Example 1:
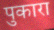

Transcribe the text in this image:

पुकारा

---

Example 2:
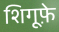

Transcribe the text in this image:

शिगूफ़े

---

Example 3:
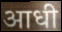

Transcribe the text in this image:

आधी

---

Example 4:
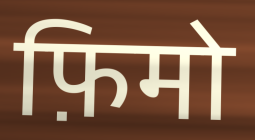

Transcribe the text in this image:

फ़िमो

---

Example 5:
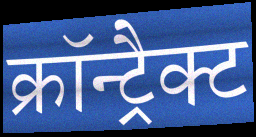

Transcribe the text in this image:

क्रॉन्ट्रैक्ट